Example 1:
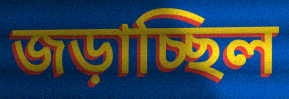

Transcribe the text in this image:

জড়াচ্ছিল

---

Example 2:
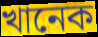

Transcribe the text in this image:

খানেক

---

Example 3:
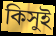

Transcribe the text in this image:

কিসুই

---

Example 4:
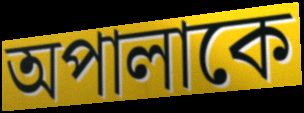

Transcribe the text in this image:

অপালাকে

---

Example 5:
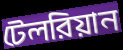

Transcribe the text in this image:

টেলরিয়ান